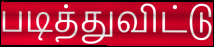
படித்துவிட்டு